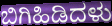
ಬಿಗಿಹಿಡಿದಳು